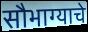
सौभाग्याचे